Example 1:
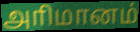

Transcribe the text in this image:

அரிமானம்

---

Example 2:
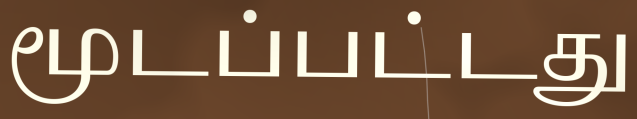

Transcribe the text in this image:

மூடப்பட்டது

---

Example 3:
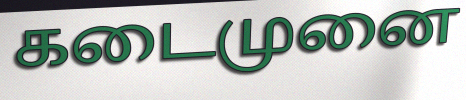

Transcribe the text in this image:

கடைமுனை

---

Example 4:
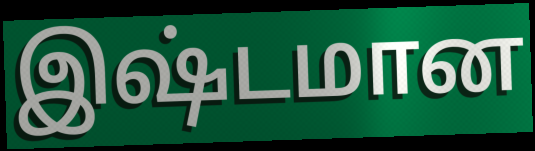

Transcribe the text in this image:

இஷ்டமான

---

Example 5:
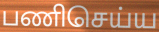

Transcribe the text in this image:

பணிசெய்ய